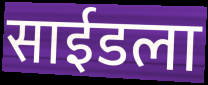
साईडला